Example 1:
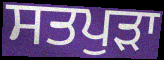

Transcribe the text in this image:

ਸਤਪੁੜਾ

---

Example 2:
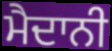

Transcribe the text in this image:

ਮੈਦਾਨੀ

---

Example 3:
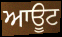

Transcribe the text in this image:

ਆਊਟ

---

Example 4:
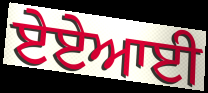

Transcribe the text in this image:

ਏਏਆਈ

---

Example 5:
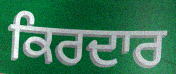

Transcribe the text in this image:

ਕਿਰਦਾਰ